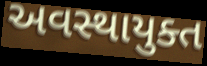
અવસ્થાયુક્ત